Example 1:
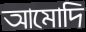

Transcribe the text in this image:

আমোদি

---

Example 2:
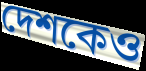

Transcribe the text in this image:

দেশকেও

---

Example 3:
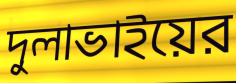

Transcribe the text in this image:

দুলাভাইয়ের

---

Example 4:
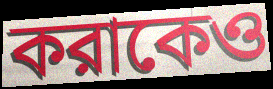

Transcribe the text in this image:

করাকেও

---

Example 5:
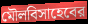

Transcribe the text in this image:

মৌলবিসাহেবের